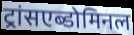
ट्रांसएब्डोमिनल